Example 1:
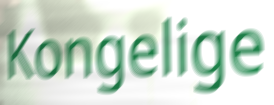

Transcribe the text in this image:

Kongelige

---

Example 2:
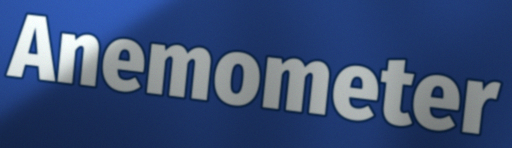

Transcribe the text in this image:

Anemometer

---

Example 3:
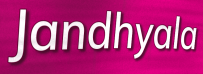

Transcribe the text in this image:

Jandhyala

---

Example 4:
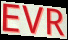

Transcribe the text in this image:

EVR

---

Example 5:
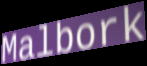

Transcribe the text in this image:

Malbork